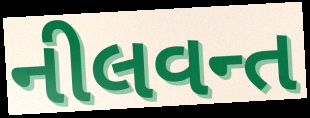
નીલવન્ત